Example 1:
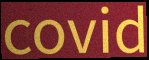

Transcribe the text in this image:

covid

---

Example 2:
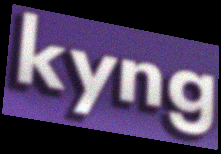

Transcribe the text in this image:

kyng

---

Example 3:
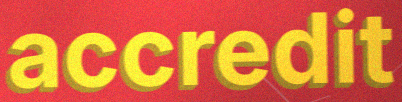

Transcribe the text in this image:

accredit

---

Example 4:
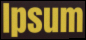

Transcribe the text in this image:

Ipsum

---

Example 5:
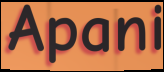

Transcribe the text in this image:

Apani